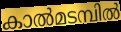
കാൽമടമ്പിൽ